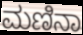
ಮಣಿನಾ